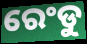
ରେଂଡୁ